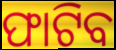
ଫାଟିବ